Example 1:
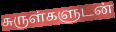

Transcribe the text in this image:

சுருள்களுடன்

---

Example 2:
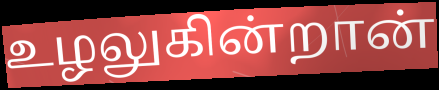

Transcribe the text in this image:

உழலுகின்றான்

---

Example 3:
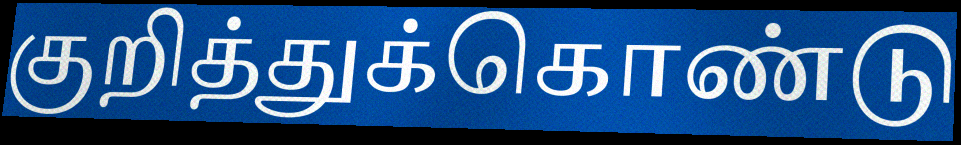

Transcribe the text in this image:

குறித்துக்கொண்டு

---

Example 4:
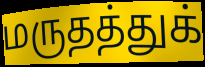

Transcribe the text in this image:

மருதத்துக்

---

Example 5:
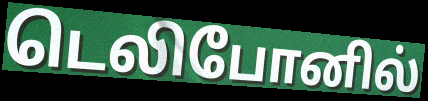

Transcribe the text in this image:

டெலிபோனில்